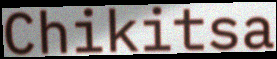
Chikitsa